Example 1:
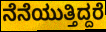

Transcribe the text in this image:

ನೆನೆಯುತ್ತಿದ್ದರೆ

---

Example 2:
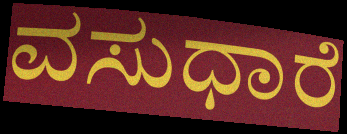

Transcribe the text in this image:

ವಸುಧಾರೆ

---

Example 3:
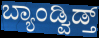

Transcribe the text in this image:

ಬ್ಯಾಂಡ್ವಿಡ್ತ್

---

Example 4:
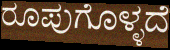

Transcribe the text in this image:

ರೂಪುಗೊಳ್ಳದೆ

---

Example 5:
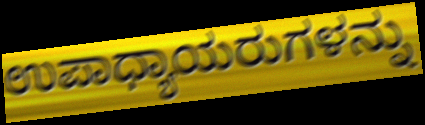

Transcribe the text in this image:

ಉಪಾಧ್ಯಾಯರುಗಳನ್ನು